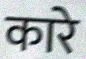
कारे